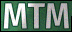
MTM